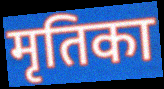
मृतिका